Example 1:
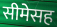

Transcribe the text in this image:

सीमेसह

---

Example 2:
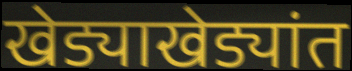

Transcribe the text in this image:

खेड्याखेड्यांत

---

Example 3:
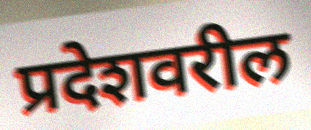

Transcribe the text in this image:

प्रदेशवरील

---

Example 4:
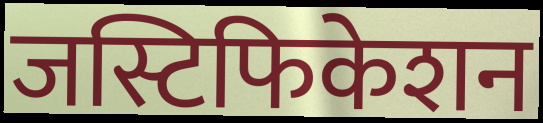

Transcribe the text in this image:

जस्टिफिकेशन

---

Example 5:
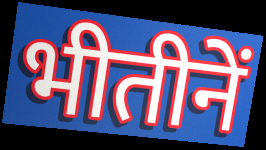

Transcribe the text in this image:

भीतीनें